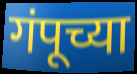
गंपूच्या